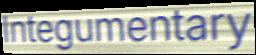
Integumentary